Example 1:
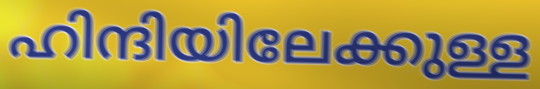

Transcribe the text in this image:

ഹിന്ദിയിലേക്കുള്ള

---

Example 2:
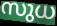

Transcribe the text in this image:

സുധ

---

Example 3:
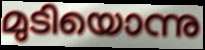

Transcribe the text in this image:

മുടിയൊന്നു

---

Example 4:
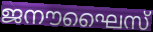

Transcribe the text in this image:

ജനൗഘൈസ്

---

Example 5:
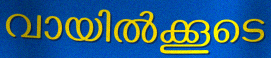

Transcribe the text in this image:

വായിൽക്കൂടെ